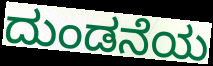
ದುಂಡನೆಯ